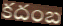
కదంబ